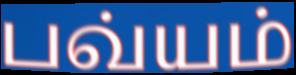
பவ்யம்